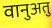
वानुअतु